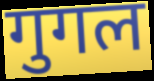
गुगल